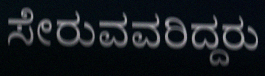
ಸೇರುವವರಿದ್ದರು